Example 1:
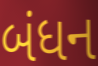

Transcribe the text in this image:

બંધન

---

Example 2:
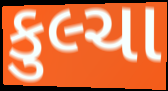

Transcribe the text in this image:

કુલ્ચા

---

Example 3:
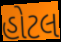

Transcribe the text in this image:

હોટલ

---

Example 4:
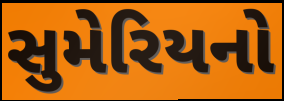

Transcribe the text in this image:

સુમેરિયનો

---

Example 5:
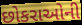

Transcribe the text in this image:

છોકરાઓની